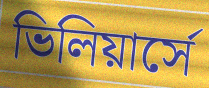
ভিলিয়ার্সে